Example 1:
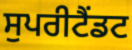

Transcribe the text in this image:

ਸੁਪਰੀਟੈਂਡਟ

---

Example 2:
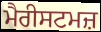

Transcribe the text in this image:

ਮੈਰੀਸਟਮਜ਼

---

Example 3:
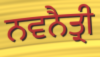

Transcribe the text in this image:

ਨਵਨੈਤ੍ਰੀ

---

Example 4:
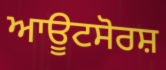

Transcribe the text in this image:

ਆਊਟਸੋਰਸ਼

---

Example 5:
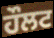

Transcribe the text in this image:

ਹੌਲਟ